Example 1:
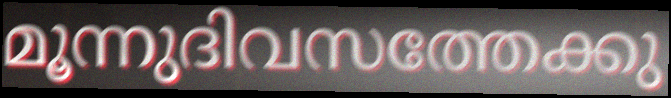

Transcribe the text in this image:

മൂന്നുദിവസത്തേക്കു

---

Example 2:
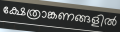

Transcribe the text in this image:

ക്ഷേത്രാങ്കണങ്ങളിൽ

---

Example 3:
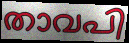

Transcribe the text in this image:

താവപി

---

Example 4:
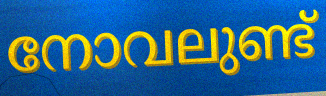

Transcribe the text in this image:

നോവലുണ്ട്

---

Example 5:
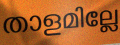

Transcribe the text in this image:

താളമില്ലേ